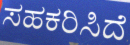
ಸಹಕರಿಸಿದೆ